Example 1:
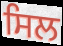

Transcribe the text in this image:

ਸਿਲ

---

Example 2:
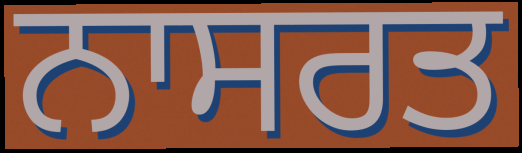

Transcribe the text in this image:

ਨਾਸਰਤ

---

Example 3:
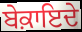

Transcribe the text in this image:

ਬੇਕ਼ਾਇਦੇ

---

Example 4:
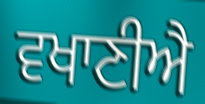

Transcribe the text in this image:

ਵਖਾਣੀਐ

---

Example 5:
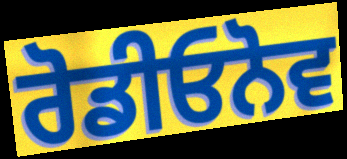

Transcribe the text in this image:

ਰੋਡੀਓਨੋਵ